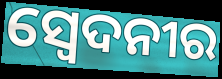
ସ୍ୱେଦନୀର